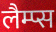
लैम्प्स